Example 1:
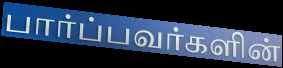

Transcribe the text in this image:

பார்ப்பவர்களின்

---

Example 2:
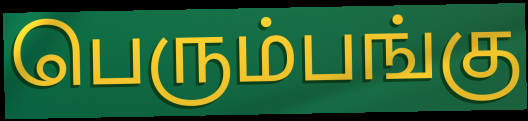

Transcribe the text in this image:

பெரும்பங்கு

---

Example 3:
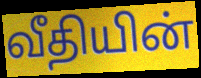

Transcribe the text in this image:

வீதியின்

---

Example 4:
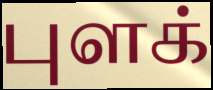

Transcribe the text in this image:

புளக்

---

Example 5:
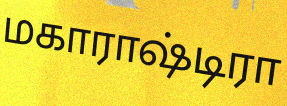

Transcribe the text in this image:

மகாராஷ்டிரா